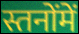
स्तनोंमें